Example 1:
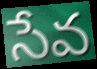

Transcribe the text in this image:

సేవ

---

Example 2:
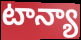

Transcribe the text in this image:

టాన్యా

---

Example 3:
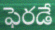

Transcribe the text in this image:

ఫెరడే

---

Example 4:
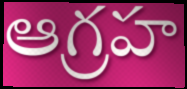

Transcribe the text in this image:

ఆగ్రహ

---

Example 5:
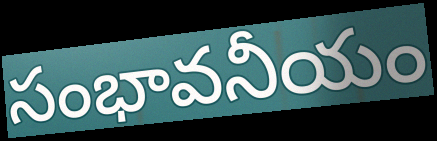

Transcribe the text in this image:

సంభావనీయం